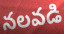
నలవడి